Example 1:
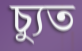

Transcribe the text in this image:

চ্যুত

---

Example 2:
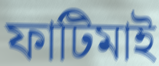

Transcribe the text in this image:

ফাটিমাই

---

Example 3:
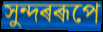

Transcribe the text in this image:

সুন্দৰৰূপে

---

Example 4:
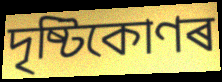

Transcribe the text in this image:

দৃষ্টিকোণৰ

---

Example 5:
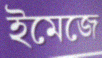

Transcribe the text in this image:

ইমেজে